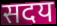
सदय